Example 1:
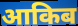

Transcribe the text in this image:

आकिब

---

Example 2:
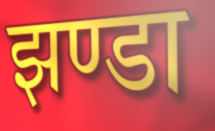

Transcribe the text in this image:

झण्डा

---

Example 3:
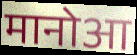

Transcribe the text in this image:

मानोआ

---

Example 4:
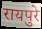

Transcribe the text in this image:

रायपुरे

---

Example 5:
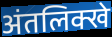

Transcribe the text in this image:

अंतलिक्खे